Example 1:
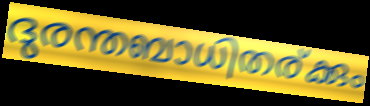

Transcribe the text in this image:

ദുരന്തബാധിതര്ക്കും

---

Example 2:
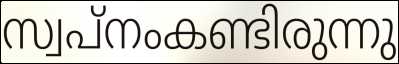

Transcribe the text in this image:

സ്വപ്നംകണ്ടിരുന്നു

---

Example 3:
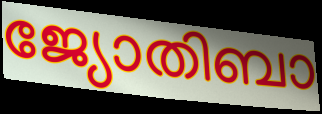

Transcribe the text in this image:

ജ്യോതിബാ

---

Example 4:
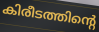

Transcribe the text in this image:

കിരീടത്തിന്റെ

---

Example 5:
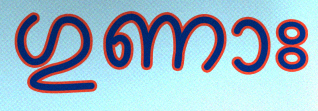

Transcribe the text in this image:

ഗുണാഃ